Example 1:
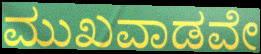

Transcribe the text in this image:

ಮುಖವಾಡವೇ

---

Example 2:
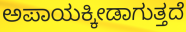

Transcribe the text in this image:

ಅಪಾಯಕ್ಕೀಡಾಗುತ್ತದೆ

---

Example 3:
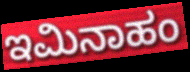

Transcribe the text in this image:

ಇಮಿನಾಹಂ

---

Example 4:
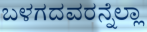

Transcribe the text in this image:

ಬಳಗದವರನ್ನೆಲ್ಲಾ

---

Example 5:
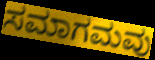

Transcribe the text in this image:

ಸಮಾಗಮವು